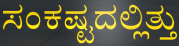
ಸಂಕಷ್ಟದಲ್ಲಿತ್ತು